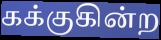
கக்குகின்ற